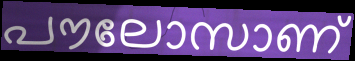
പൗലോസാണ്